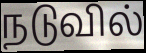
நடுவில்